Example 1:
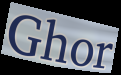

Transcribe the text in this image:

Ghor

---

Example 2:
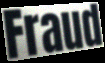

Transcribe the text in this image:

Fraud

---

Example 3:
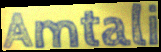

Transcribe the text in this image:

Amtali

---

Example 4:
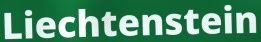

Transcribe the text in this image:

Liechtenstein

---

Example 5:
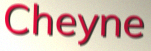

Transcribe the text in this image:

Cheyne